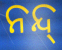
ନନ୍ଦ୍